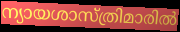
ന്യായശാസ്ത്രിമാരിൽ